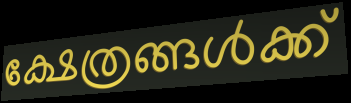
ക്ഷേത്രങ്ങൾക്ക്